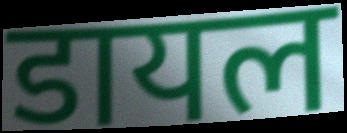
डायल